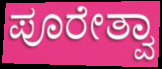
ಪೂರೇತ್ವಾ